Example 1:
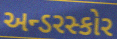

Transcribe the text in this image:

અન્ડરસ્કોર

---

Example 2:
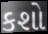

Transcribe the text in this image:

કશો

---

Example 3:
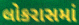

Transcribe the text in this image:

લોકરાસમાં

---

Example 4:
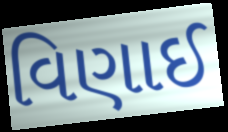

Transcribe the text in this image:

વિણાઈ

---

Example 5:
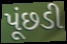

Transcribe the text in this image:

પૂંછડી